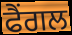
ਫੈਂਗਲ